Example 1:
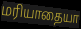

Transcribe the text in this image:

மரியாதையா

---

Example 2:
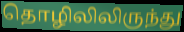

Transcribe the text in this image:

தொழிலிலிருந்து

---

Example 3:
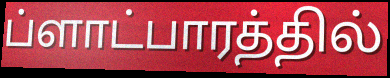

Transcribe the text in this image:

ப்ளாட்பாரத்தில்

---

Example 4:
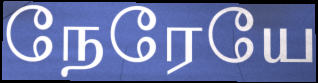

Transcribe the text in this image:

நேரேயே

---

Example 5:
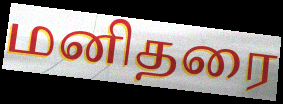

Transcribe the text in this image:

மனிதரை